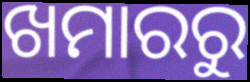
ଖମାରରୁ